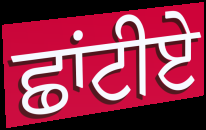
ਛਾਂਟੀਏ